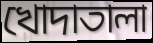
খোদাতালা